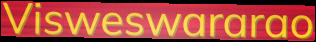
Visweswararao